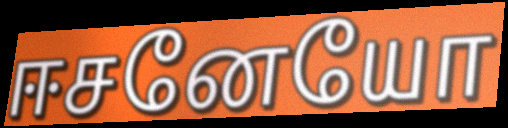
ஈசனேயோ